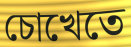
চোখেতে